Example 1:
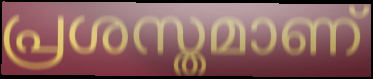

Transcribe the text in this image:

പ്രശസ്തമാണ്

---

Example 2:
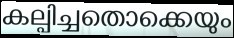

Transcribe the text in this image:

കല്പിച്ചതൊക്കെയും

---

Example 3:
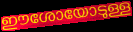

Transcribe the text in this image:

ഈശോയോടുള്ള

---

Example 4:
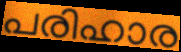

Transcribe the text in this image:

പരിഹാര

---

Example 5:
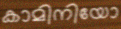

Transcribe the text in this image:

കാമിനിയോ